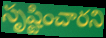
సృష్టించారని